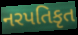
નરપતિકૃત